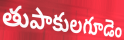
తుపాకులగూడెం